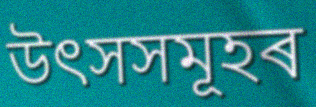
উৎসসমূহৰ